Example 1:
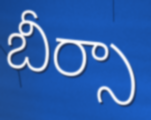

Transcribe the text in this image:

బీర్సా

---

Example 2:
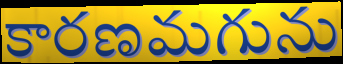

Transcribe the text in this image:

కారణమగును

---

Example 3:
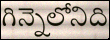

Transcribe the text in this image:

గిన్నెలోనిది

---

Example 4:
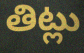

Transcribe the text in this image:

తిట్లు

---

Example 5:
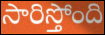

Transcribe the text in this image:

సారిస్తోంది